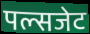
पल्सजेट